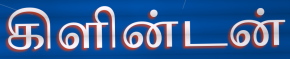
கிளின்டன்